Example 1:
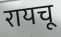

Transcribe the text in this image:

रायचू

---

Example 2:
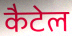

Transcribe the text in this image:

कैटेल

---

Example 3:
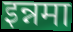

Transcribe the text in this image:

इन्नमा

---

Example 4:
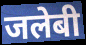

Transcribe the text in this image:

जलेबी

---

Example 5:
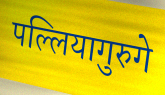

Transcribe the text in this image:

पल्लियागुरुगे